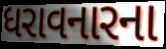
ધરાવનારના